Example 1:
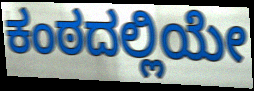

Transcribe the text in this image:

ಕಂಠದಲ್ಲಿಯೇ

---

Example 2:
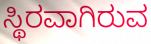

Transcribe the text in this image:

ಸ್ಥಿರವಾಗಿರುವ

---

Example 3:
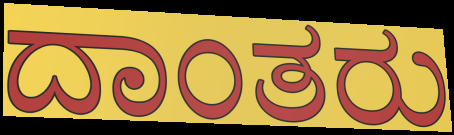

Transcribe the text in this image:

ದಾಂತರು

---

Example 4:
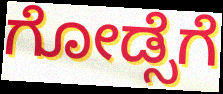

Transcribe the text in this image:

ಗೋಡ್ಸೆಗೆ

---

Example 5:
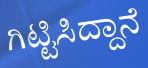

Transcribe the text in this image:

ಗಿಟ್ಟಿಸಿದ್ದಾನೆ